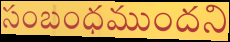
సంబంధముందని